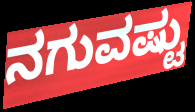
ನಗುವಷ್ಟು